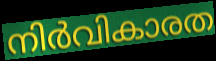
നിർവികാരത